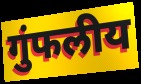
गुंफलीय